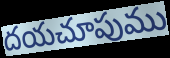
దయచూపుము